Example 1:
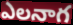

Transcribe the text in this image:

ఎలనాగ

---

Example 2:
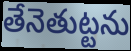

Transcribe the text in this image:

తేనెతుట్టను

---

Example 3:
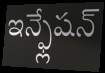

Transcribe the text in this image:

ఇన్ఫ్లేషన్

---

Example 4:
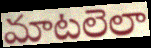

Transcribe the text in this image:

మాటలెలా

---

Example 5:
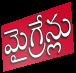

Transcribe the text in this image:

మైగ్రేన్లు